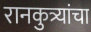
रानकुत्र्यांचा